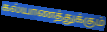
கல்யாணத்துக்கும்